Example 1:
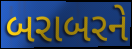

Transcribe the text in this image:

બરાબરને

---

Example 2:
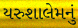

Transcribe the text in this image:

યરુશાલેમનું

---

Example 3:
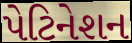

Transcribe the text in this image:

પેટિનેશન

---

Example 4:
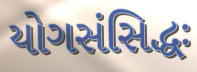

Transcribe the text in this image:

યોગસંસિદ્ધઃ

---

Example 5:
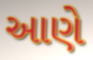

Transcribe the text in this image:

આણે